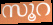
സൂറ